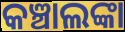
କଞ୍ଚାଲଙ୍କା